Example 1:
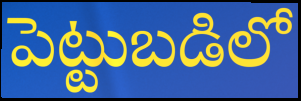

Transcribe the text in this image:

పెట్టుబడిలో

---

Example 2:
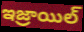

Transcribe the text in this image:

ఇజ్రాయిల్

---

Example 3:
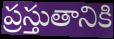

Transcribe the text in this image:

ప్రస్తుతానికి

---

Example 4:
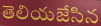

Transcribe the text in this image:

తెలియజేసిన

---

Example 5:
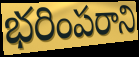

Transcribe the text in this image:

భరింపరాని